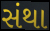
સંથા